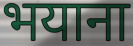
भयाना